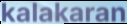
kalakaran